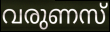
വരുണസ്